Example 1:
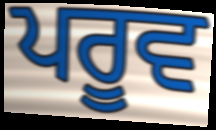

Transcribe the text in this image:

ਪਰੂਵ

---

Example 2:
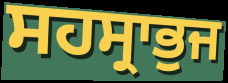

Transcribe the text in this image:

ਸਹਸ੍ਰਾਭੁਜ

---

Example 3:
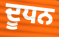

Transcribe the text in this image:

ਦੂਧਨ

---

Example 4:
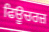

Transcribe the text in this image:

ਫਿਊਚਰਜ਼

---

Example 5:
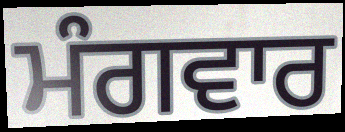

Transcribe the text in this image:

ਮੰਗਵਾਰ